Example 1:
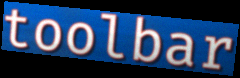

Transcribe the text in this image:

toolbar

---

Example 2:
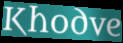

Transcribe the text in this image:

Khodve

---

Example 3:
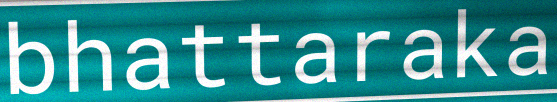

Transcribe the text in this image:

bhattaraka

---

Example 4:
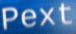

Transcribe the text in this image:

Pext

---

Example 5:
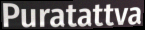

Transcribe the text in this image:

Puratattva